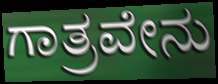
ಗಾತ್ರವೇನು